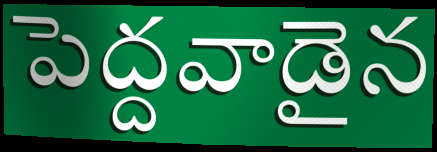
పెద్దవాడైన